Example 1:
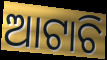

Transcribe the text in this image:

ଆଟାଚି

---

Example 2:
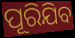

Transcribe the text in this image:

ପୂରିଯିବ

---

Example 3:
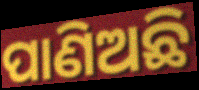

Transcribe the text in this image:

ପାଣିଅଛି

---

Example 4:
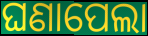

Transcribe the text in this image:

ଘଣାପେଲା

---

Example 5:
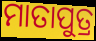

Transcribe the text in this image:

ମାତାପୁତ୍ର